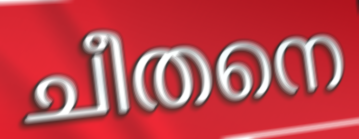
ചീതനെ